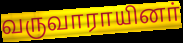
வருவாராயினர்